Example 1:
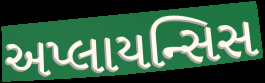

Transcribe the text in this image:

અપ્લાયન્સિસ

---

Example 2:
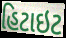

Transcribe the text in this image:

હિટાઇટ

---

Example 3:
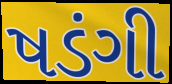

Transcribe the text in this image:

ષડંગી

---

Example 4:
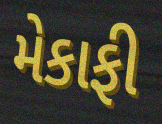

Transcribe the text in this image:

મેકાફી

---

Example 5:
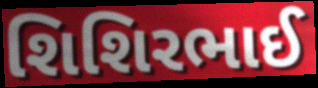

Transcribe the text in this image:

શિશિરભાઈ